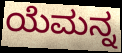
ಯೆಮನ್ನ